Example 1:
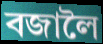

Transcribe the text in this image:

বজালৈ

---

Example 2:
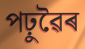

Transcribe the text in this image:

পঢ়ুৱৈৰ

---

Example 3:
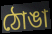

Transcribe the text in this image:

ঠোঙা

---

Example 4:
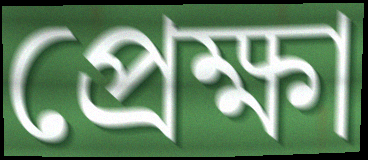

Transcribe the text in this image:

প্ৰেক্ষা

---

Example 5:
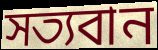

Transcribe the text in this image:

সত্যবান